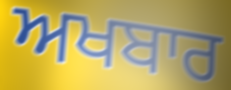
ਅਖਬਾਰ